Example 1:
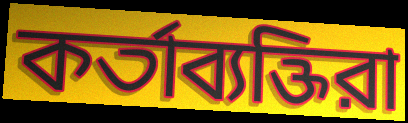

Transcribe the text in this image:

কর্তাব্যক্তিরা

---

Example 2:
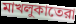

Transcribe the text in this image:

মাখলুকাতেরা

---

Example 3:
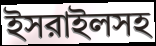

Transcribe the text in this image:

ইসরাইলসহ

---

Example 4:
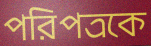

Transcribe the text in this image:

পরিপত্রকে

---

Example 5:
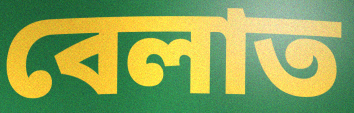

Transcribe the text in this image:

বেলাত